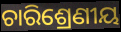
ଚାରିଶ୍ରେଣୀୟ